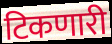
टिकणारी